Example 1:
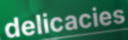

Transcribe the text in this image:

delicacies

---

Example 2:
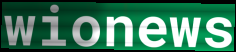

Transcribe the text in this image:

wionews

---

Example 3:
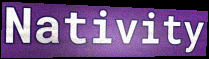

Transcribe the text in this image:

Nativity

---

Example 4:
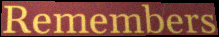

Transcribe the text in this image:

Remembers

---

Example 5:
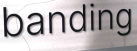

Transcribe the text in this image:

banding